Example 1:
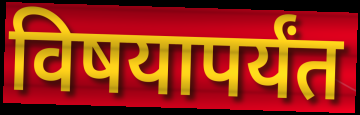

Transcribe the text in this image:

विषयापर्यंत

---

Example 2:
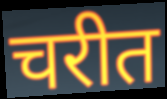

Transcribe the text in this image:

चरीत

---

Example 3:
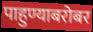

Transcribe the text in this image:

पाहुण्याबरोबर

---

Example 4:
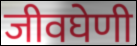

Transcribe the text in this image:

जीवघेणी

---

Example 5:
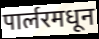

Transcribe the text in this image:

पार्लरमधून